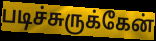
படிச்சுருக்கேன்